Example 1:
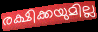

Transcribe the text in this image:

രക്ഷിക്കയുമില്ല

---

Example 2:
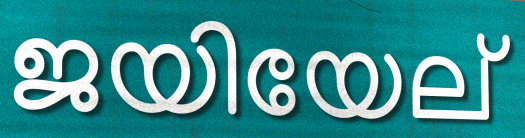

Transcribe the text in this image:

ജയിയേല്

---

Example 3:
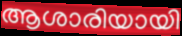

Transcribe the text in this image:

ആശാരിയായി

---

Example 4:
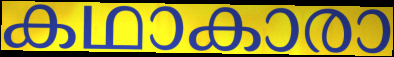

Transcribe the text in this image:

കഥാകാരാ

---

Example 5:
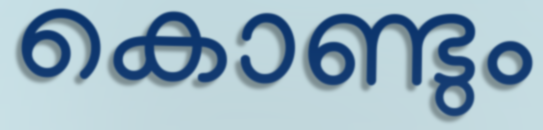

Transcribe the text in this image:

കൊണ്ടും